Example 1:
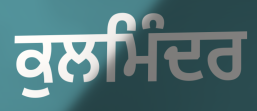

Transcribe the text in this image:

ਕੁਲਮਿੰਦਰ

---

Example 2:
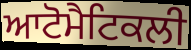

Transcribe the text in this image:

ਆਟੋਮੈਟਿਕਲੀ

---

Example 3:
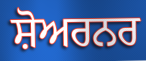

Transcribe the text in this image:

ਸ਼ੋਅਰਨਰ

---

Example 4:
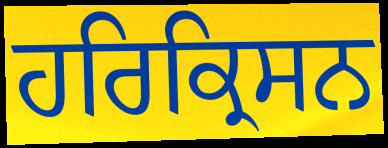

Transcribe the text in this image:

ਹਰਿਕ੍ਰਿਸਨ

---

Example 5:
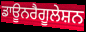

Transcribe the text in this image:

ਡਾਊਨਰੈਗੂਲੇਸ਼ਨ